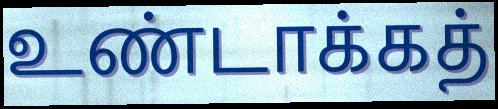
உண்டாக்கத்